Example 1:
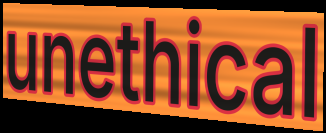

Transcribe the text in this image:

unethical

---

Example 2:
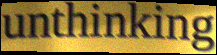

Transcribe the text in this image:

unthinking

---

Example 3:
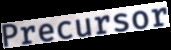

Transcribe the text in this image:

Precursor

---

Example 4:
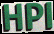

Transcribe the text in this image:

HPI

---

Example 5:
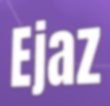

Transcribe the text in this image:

Ejaz